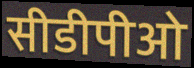
सीडीपीओ